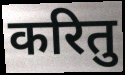
करितु